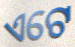
ଏଟେ